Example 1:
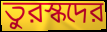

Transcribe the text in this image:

তুরস্কদের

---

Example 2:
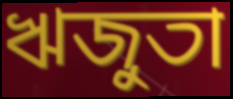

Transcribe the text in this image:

ঋজুতা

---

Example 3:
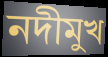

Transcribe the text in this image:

নদীমুখ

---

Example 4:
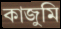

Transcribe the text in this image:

কাজুমি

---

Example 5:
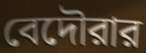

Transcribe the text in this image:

বেদৌরার